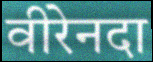
वीरेनदा